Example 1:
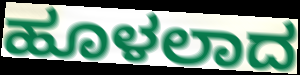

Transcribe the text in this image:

ಹೂಳಲಾದ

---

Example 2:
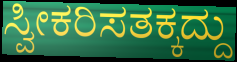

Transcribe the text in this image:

ಸ್ವೀಕರಿಸತಕ್ಕದ್ದು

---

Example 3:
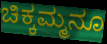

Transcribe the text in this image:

ಚಿಕ್ಕಮ್ಮನೂ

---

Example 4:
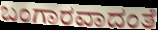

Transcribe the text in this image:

ಬಂಗಾರವಾದಂತೆ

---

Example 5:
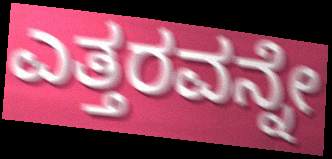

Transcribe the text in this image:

ಎತ್ತರವನ್ನೇ